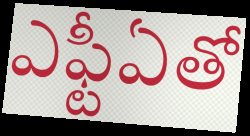
ఎఫ్టీఏతో